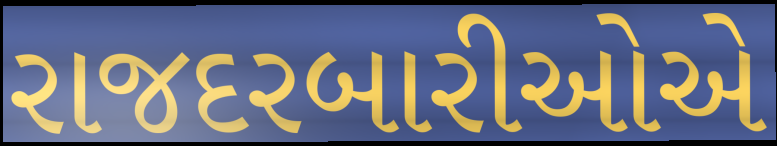
રાજદરબારીઓએ